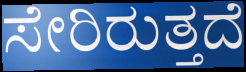
ಸೇರಿರುತ್ತದೆ